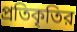
প্রতিকৃতির